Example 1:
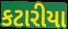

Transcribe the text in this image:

કટારીયા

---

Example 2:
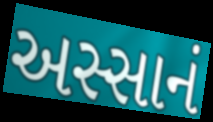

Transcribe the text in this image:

અસ્સાનં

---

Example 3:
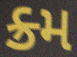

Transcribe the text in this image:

ક્ર્મ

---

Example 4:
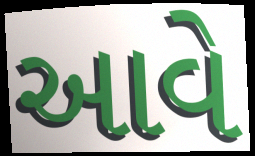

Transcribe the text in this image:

આવે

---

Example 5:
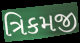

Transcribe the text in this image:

ત્રિકમજી